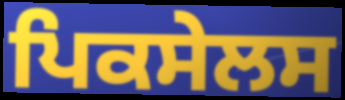
ਪਿਕਸੇਲਸ